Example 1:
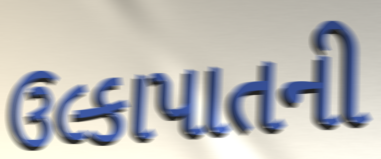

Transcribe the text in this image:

ઉલ્કાપાતની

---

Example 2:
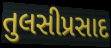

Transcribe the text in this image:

તુલસીપ્રસાદ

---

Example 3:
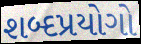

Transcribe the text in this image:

શબ્દપ્રયોગો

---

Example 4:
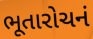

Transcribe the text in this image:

ભૂતારોચનં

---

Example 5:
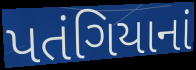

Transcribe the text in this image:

પતંગિયાનાં